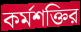
কর্মশক্তির